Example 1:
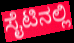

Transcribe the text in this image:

ಸೈಟಿನಲ್ಲಿ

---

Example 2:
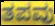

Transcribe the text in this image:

ತಪವು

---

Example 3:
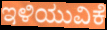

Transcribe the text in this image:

ಇಳಿಯುವಿಕೆ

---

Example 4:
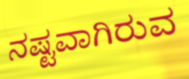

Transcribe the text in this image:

ನಷ್ಟವಾಗಿರುವ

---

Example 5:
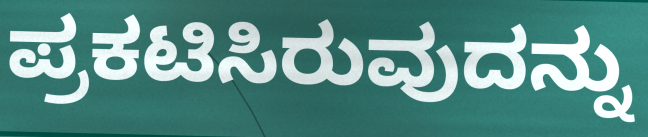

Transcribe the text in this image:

ಪ್ರಕಟಿಸಿರುವುದನ್ನು